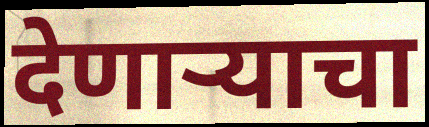
देणार्‍याचा